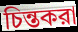
চিন্তকরা